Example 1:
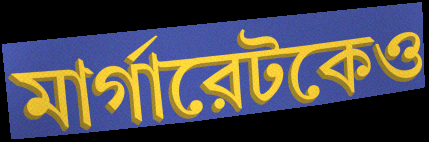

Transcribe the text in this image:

মার্গারেটকেও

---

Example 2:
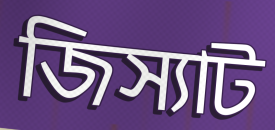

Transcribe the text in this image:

জিস্যাট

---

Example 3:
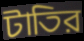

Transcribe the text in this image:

টাতির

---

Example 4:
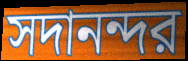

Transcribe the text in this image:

সদানন্দর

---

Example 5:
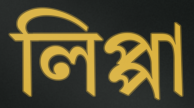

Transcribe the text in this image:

লিপ্পা